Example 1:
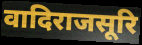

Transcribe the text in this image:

वादिराजसूरि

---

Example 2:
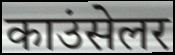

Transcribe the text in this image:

काउंसेलर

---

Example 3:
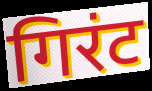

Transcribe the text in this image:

गिरंट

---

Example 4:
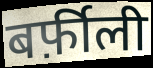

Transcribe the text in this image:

बर्फ़ीली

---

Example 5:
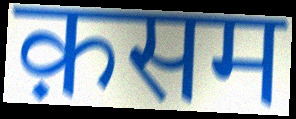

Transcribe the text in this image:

क़सम